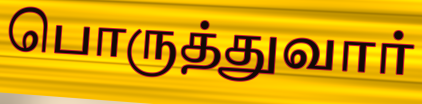
பொருத்துவார்